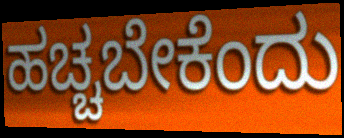
ಹಚ್ಚಬೇಕೆಂದು